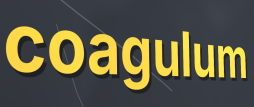
coagulum